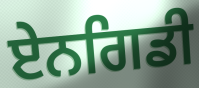
ਏਨਗਿਡੀ